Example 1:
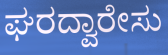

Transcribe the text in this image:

ಘರದ್ವಾರೇಸು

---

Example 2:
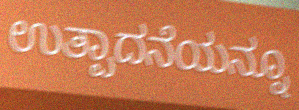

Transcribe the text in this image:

ಉತ್ಪಾದನೆಯನ್ನೂ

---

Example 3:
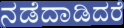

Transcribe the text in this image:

ನಡೆದಾಡಿದರೆ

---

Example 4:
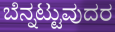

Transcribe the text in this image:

ಬೆನ್ನಟ್ಟುವುದರ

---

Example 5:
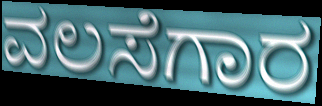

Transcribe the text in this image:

ವಲಸೆಗಾರ